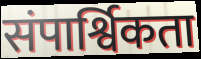
संपार्श्विकता